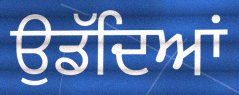
ਉਡੱਦਿਆਂ